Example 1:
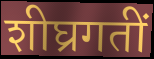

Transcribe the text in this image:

शीघ्रगतीं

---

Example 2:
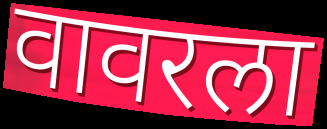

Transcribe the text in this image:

वावरला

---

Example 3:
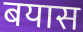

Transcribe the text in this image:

बयास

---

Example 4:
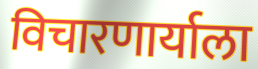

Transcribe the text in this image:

विचारणार्याला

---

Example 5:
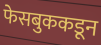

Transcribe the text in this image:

फेसबुककडून